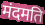
मंदमति